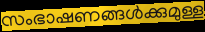
സംഭാഷണങ്ങൾക്കുമുള്ള